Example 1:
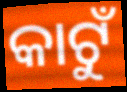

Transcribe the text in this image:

କାଟୁଁ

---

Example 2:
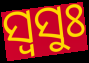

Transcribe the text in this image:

ସ୍ଵସୁଃ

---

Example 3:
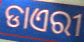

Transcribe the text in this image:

ଡାଏରୀ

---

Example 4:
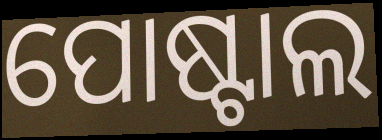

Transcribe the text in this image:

ପୋଷ୍ଟାଲ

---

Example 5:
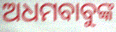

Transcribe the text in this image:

ଅଧମବାବୁଙ୍କ